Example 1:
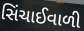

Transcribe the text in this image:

સિંચાઈવાળી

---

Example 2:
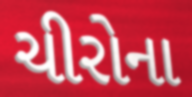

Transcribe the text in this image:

ચીરોના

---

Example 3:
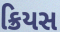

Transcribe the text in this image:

ક્રિયસ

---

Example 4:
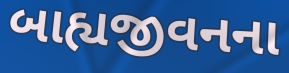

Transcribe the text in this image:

બાહ્યજીવનના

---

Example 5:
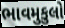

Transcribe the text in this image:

ભાવમુકુલો